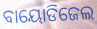
ବାୟୋଡିଜେଲ